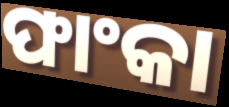
ଫାଂକା